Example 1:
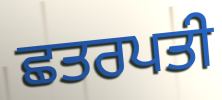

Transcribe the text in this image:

ਛਤਰਪਤੀ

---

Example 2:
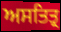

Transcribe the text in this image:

ਅਸਤਿਤ੍ਰ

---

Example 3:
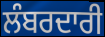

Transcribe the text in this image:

ਲੰਬਰਦਾਰੀ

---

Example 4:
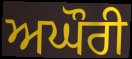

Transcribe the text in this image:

ਅਘੌਰੀ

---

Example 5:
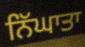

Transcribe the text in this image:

ਨਿੱਘਾਤਾ